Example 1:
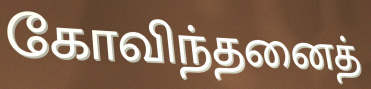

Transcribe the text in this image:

கோவிந்தனைத்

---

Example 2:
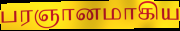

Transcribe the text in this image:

பரஞானமாகிய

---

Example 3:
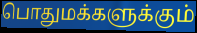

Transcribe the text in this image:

பொதுமக்களுக்கும்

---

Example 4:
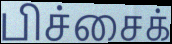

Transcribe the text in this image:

பிச்சைக்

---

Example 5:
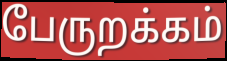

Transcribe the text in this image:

பேருறக்கம்